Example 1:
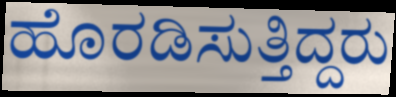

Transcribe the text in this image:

ಹೊರಡಿಸುತ್ತಿದ್ದರು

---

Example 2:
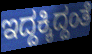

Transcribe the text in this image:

ಇದ್ದಕ್ಕಿದ್ದಂತೆ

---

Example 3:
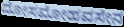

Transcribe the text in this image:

ದೋಸಮೋಹವಸೇನ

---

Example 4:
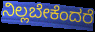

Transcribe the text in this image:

ನಿಲ್ಲಬೇಕೆಂದರೆ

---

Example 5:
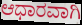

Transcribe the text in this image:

ಆಧಾರವಾಗಿ